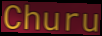
Churu